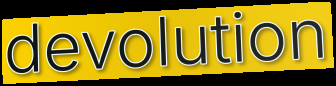
devolution